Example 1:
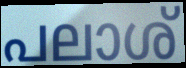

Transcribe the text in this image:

പലാശ്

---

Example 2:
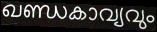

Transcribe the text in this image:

ഖണ്ഡകാവ്യവും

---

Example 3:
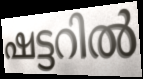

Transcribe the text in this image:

ഷട്ടറിൽ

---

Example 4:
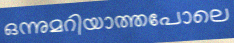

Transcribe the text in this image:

ഒന്നുമറിയാത്തപോലെ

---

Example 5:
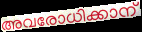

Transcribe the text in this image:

അവരോധിക്കാന്